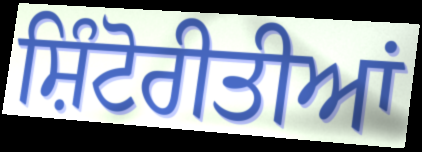
ਸ਼ਿੰਟੋਰੀਤੀਆਂ